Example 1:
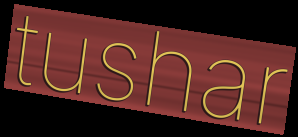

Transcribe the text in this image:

tushar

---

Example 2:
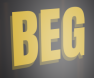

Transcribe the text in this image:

BEG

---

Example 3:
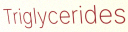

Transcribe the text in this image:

Triglycerides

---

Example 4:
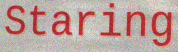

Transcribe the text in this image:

Staring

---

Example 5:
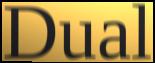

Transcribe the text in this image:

Dual